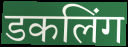
डकलिंग